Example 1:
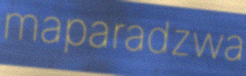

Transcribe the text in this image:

maparadzwa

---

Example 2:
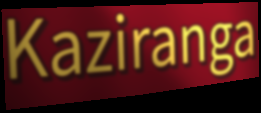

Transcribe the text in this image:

Kaziranga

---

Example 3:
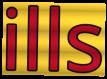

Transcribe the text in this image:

ills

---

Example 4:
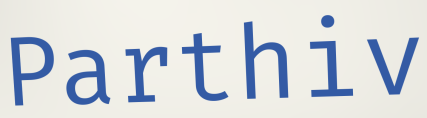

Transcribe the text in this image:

Parthiv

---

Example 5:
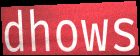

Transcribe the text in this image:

dhows